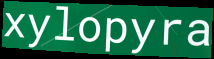
xylopyra